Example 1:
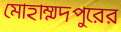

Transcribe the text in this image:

মোহাম্মদপুরের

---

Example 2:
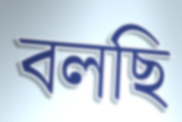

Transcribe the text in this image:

বলছি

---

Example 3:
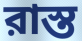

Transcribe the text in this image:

রাস্ত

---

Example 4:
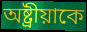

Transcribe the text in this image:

অষ্ট্রীয়াকে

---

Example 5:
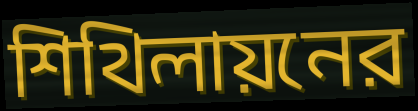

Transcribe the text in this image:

শিথিলায়নের